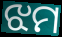
ଝମ